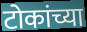
टोकांच्या